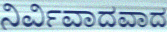
ನಿರ್ವಿವಾದವಾದ